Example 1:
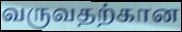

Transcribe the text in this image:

வருவதற்கான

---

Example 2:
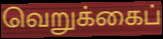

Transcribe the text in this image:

வெறுக்கைப்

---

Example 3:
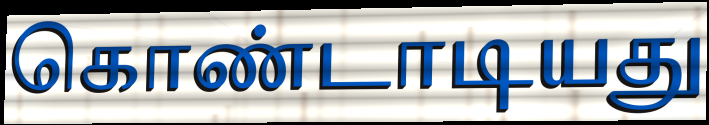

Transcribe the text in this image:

கொண்டாடியது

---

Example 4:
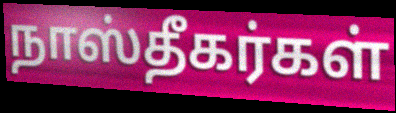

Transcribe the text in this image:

நாஸ்தீகர்கள்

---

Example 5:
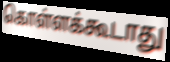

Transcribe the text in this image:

கொள்ளக்கூடாது